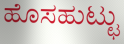
ಹೊಸಹುಟ್ಟು